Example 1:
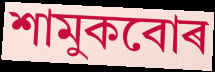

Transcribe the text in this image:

শামুকবোৰ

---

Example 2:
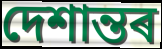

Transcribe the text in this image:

দেশান্তৰ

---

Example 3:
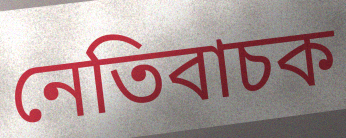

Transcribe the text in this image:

নেতিবাচক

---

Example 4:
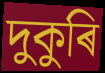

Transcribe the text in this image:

দুকুৰি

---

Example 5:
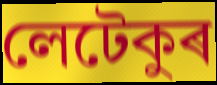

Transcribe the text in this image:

লেটেকুৰ